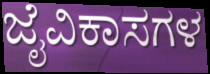
ಜೈವಿಕಾಸಗಳ